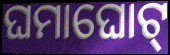
ଘମାଘୋଟ୍